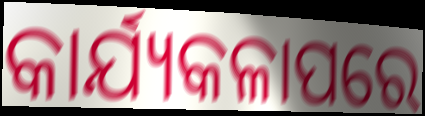
କାର୍ଯ୍ୟକଳାପରେ